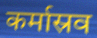
कर्मास्रव